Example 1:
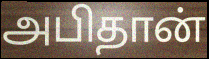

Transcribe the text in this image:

அபிதான்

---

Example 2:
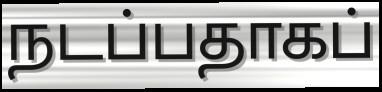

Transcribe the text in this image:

நடப்பதாகப்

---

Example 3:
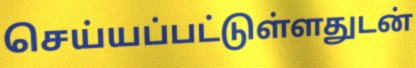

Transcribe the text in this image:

செய்யப்பட்டுள்ளதுடன்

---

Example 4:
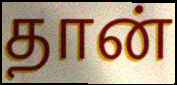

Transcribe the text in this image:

தான்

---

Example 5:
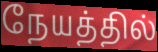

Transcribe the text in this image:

நேயத்தில்